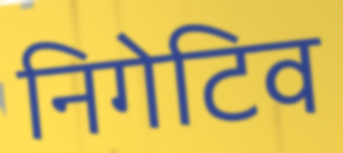
निगेटिव